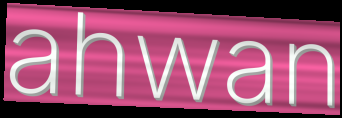
ahwan